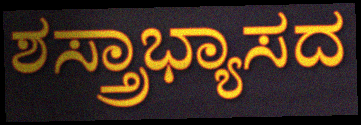
ಶಸ್ತ್ರಾಭ್ಯಾಸದ